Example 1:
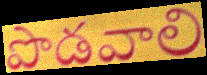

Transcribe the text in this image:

పొడవాలి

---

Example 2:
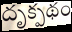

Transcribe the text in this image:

దృక్పథం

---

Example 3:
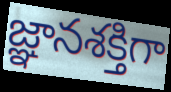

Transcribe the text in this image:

జ్ఞానశక్తిగా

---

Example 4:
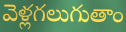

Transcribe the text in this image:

వెళ్లగలుగుతాం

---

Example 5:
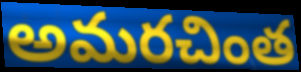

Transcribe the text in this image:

అమరచింత